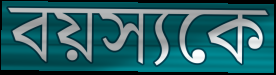
বয়স্যকে